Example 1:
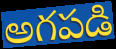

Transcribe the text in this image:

అగపడి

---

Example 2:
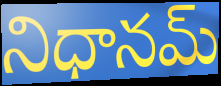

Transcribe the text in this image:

నిధానమ్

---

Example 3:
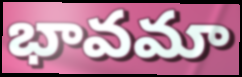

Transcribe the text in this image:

భావమా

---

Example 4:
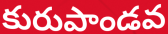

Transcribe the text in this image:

కురుపాండవ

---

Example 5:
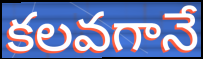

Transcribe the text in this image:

కలవగానే